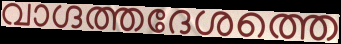
വാഗ്ദത്തദേശത്തെ